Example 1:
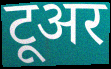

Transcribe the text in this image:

टूअर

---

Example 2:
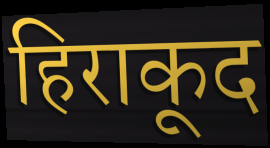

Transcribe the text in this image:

हिराकूद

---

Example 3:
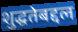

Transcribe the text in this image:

शुद्धतेबद्दल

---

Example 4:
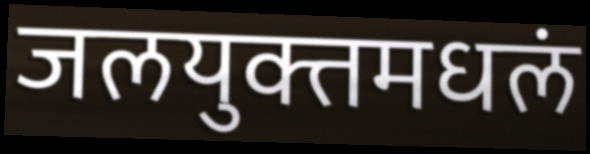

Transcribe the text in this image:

जलयुक्तमधलं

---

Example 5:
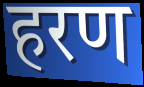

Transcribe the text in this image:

हरण